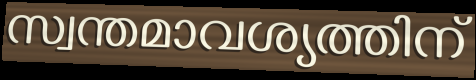
സ്വന്തമാവശ്യത്തിന്